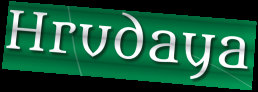
Hrudaya